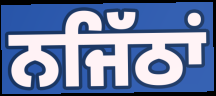
ਨਜਿੱਠਾਂ